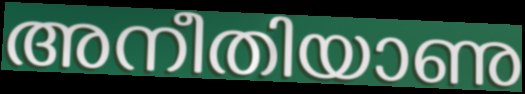
അനീതിയാണു